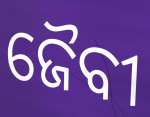
ଜୈବୀ